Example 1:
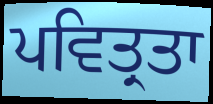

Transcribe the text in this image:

ਪਵਿਤ੍ਰਤਾ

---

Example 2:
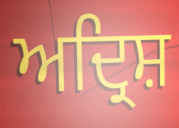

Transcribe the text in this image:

ਅਦ੍ਰਿਸ਼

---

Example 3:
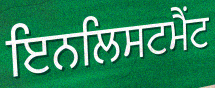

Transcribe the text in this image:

ਇਨਲਿਸਟਮੈਂਟ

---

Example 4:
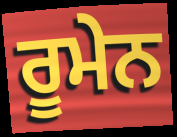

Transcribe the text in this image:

ਰੂਮੇਨ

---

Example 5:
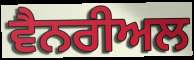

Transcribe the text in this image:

ਵੈਨਰੀਅਲ